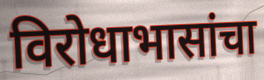
विरोधाभासांचा